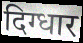
दिग्धार